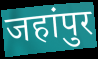
जहांपुर